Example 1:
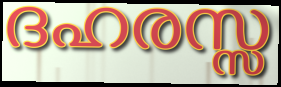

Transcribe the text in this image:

ദഹരസ്സ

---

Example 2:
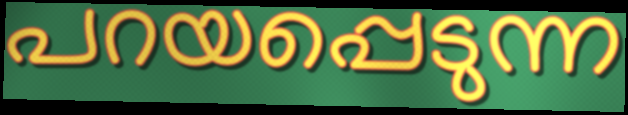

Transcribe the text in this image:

പറയപ്പെടുന്ന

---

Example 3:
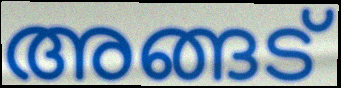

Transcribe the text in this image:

അങ്ങട്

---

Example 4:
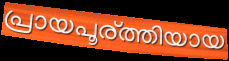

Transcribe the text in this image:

പ്രായപൂര്ത്തിയായ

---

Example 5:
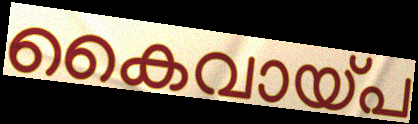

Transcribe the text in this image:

കൈവായ്പ